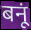
बनूं